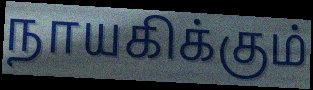
நாயகிக்கும்